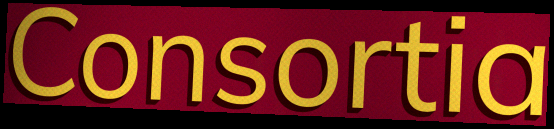
Consortia